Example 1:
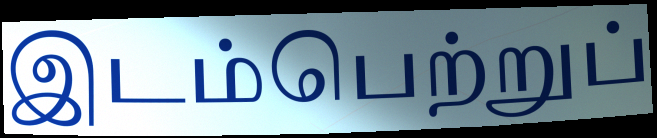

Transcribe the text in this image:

இடம்பெற்றுப்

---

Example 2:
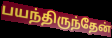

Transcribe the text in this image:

பயந்திருந்தேன்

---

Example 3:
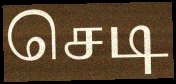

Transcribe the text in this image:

செடி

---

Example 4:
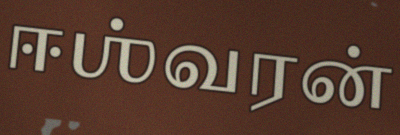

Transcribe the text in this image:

ஈஶ்வரன்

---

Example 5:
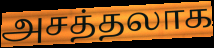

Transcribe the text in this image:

அசத்தலாக